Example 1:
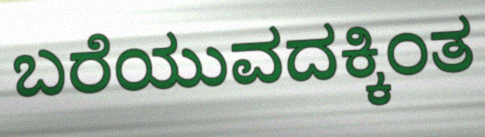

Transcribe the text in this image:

ಬರೆಯುವದಕ್ಕಿಂತ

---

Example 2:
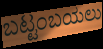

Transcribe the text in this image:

ಬಟ್ಟಂಬಯಲು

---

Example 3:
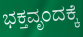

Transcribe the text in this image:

ಭಕ್ತವೃಂದಕ್ಕೆ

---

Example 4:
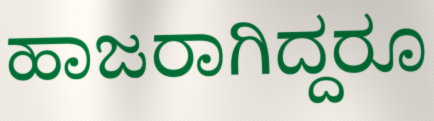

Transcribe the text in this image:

ಹಾಜರಾಗಿದ್ದರೂ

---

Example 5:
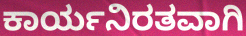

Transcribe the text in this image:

ಕಾರ್ಯನಿರತವಾಗಿ